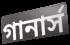
গানার্স